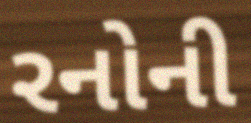
રનોની